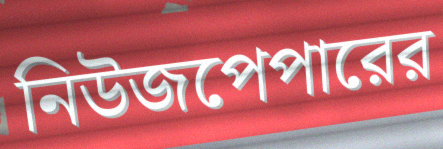
নিউজপেপারের